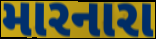
મારનારા